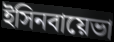
ইসিনবায়েভা